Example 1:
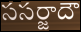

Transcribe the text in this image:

ససర్జాదౌ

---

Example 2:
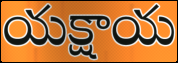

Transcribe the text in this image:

యక్షాయ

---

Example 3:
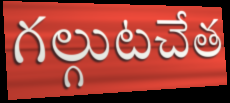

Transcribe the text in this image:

గల్గుటచేత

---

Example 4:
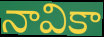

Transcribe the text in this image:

నావికా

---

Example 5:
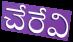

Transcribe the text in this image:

చేరేవి